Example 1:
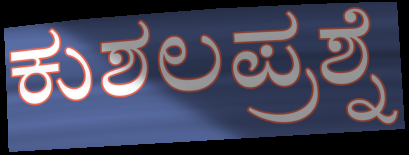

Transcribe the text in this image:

ಕುಶಲಪ್ರಶ್ನೆ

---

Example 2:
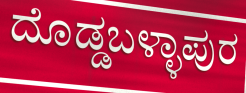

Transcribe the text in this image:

ದೊಡ್ಡಬಳ್ಳಾಪುರ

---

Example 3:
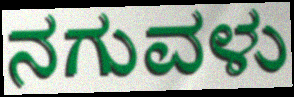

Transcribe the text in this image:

ನಗುವಳು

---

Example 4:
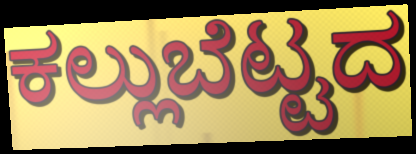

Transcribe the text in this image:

ಕಲ್ಲುಬೆಟ್ಟದ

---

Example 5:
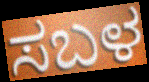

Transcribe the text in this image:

ಸಬಳ